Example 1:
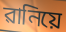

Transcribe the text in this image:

ৱানিয়ে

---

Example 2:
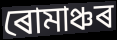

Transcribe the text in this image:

ৰোমাঞ্চৰ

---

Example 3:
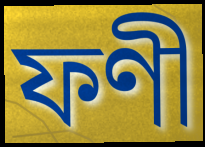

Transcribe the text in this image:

ফণী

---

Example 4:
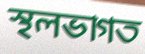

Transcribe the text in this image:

স্থলভাগত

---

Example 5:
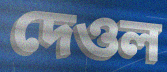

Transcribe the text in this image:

দেওল